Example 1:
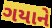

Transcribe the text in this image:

ગયાને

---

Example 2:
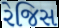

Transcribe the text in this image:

રેજિસ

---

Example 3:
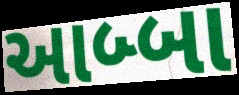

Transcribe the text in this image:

આબ્બા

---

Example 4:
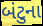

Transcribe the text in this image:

બંટુના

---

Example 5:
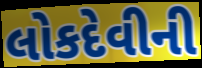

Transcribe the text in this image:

લોકદેવીની